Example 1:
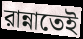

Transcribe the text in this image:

রান্নাতেই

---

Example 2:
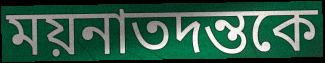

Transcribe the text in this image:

ময়নাতদন্তকে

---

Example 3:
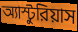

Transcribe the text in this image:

অ্যাস্টুরিয়াস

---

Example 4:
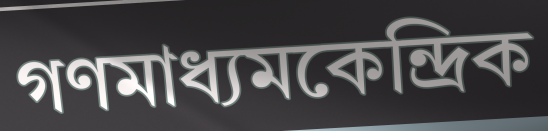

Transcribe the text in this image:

গণমাধ্যমকেন্দ্রিক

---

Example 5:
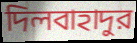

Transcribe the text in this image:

দিলবাহাদুর